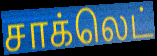
சாக்லெட்